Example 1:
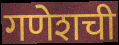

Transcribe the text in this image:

गणेशची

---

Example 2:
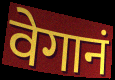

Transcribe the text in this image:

वेगानं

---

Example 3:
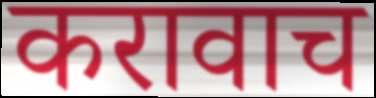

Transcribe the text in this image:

करावाच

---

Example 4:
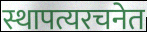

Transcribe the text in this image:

स्थापत्यरचनेत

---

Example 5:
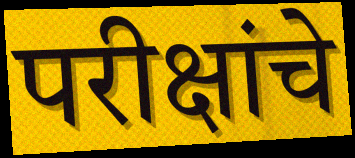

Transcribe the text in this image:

परीक्षांचे